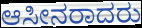
ಆಸೀನರಾದರು